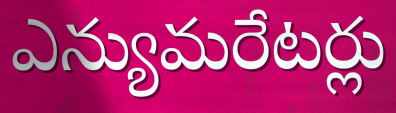
ఎన్యుమరేటర్లు